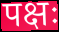
पक्षः